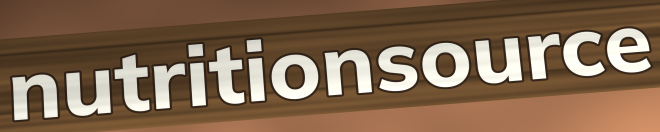
nutritionsource